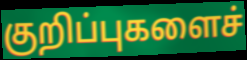
குறிப்புகளைச்